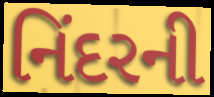
નિંદરની